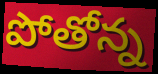
పోతోన్న